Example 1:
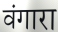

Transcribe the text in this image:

वंगारा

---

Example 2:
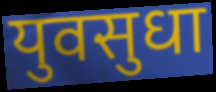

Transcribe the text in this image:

युवसुधा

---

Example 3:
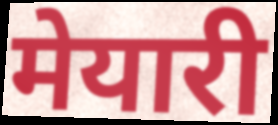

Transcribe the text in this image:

मेयारी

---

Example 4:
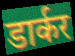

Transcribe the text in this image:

डार्कर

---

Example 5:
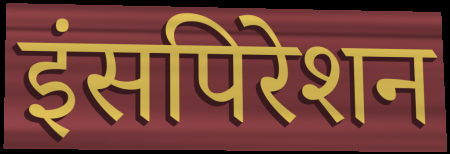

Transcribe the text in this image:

इंसपिरेशन